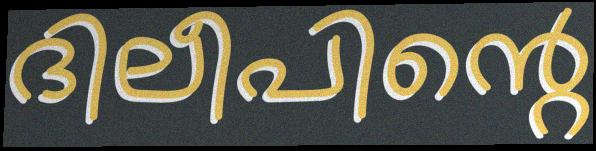
ദിലീപിന്റെ